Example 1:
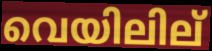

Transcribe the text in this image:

വെയിലില്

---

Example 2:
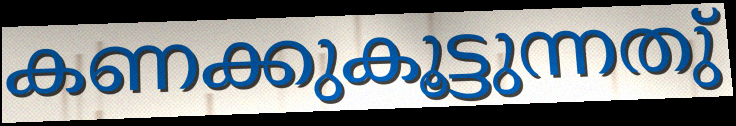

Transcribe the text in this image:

കണക്കുകൂട്ടുന്നതു്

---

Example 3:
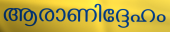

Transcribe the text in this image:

ആരാണിദ്ദേഹം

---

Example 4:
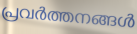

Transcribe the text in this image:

പ്രവർത്തനങ്ങൾ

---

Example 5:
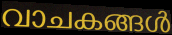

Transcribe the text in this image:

വാചകങ്ങൾ